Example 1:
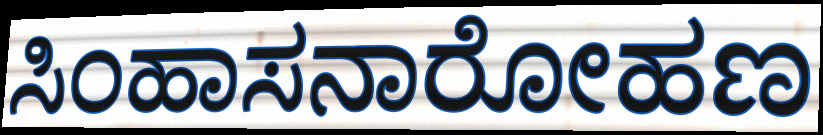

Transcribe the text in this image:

ಸಿಂಹಾಸನಾರೋಹಣ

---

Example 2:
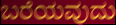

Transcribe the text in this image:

ಬರೆಯವುದು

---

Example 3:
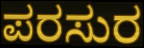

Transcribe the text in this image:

ಪರಸುರ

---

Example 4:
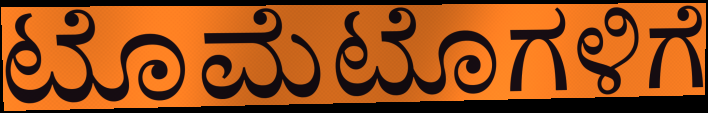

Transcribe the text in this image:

ಟೊಮೆಟೊಗಳಿಗೆ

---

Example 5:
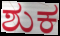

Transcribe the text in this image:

ಶುಕ